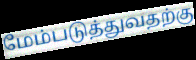
மேம்படுத்துவதற்கு